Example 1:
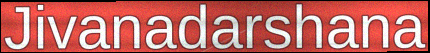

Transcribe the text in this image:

Jivanadarshana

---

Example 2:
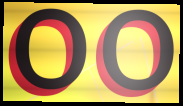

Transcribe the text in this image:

oo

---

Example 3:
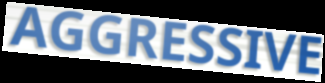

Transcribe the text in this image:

AGGRESSIVE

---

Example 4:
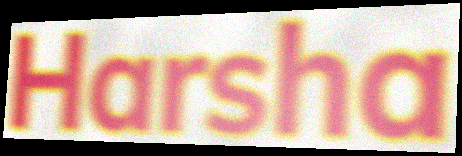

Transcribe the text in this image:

Harsha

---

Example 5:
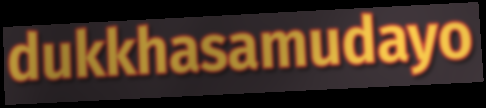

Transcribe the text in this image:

dukkhasamudayo